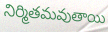
నిర్మితమవుతాయి